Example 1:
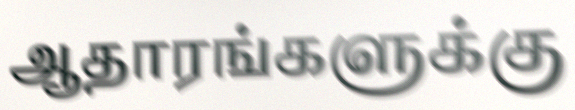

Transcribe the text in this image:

ஆதாரங்களுக்கு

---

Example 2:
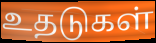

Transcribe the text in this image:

உதடுகள்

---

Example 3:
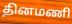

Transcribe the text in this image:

தினமணி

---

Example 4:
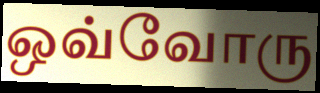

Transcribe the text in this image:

ஒவ்வோரு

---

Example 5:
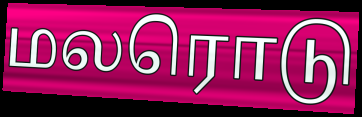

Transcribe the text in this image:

மலரொடு